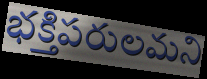
భక్తిపరులమని